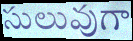
సులువుగా